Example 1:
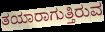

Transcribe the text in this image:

ತಯಾರಾಗುತ್ತಿರುವ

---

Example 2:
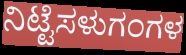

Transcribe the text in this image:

ನಿಟ್ಟೆಸಳುಗಂಗಳ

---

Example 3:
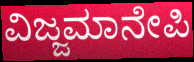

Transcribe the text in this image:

ವಿಜ್ಜಮಾನೇಪಿ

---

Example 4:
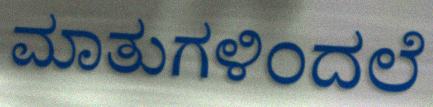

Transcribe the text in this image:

ಮಾತುಗಳಿಂದಲೆ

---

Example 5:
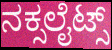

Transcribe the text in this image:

ನಕ್ಸಲೈಟ್ಸ್